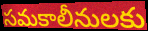
సమకాలీనులకు